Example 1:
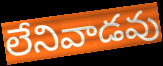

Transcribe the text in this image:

లేనివాడవు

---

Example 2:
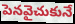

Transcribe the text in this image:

పెనవైచుకునే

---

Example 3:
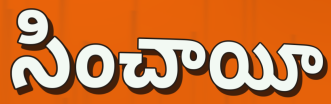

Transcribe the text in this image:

సించాయీ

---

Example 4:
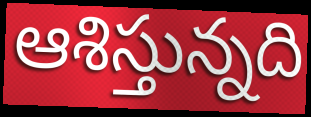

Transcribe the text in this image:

ఆశిస్తున్నది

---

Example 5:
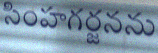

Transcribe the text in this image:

సింహగర్జనను